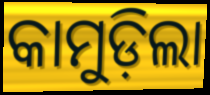
କାମୁଡ଼ିଲା